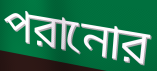
পরানোর